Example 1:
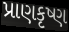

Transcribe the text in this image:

પ્રાણકૃષ્ણ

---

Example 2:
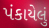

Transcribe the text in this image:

પંકાયેલું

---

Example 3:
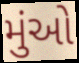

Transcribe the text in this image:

મુંઓ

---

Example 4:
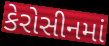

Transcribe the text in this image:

કેરોસીનમાં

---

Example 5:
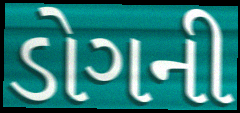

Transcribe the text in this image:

ડોગની